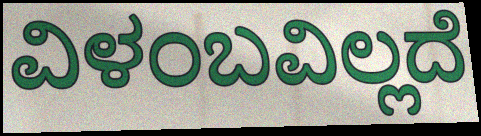
ವಿಳಂಬವಿಲ್ಲದೆ